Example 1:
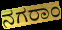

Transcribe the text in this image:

ನಗರಾಂ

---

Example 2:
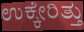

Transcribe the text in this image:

ಉಕ್ಕೇರಿತ್ತು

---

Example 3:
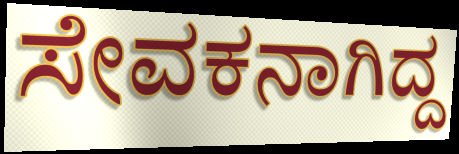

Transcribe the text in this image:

ಸೇವಕನಾಗಿದ್ದ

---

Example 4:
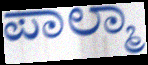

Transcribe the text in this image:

ಪಾಲ್ಮಾ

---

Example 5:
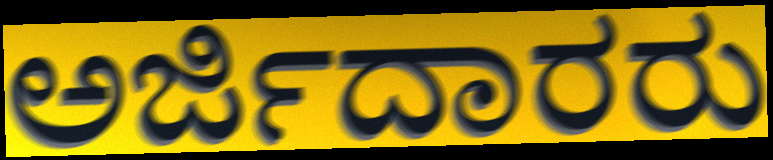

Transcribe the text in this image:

ಅರ್ಜಿದಾರರು